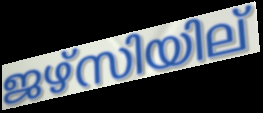
ജഴ്സിയില്